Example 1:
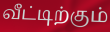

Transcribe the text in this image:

வீட்டிற்கும்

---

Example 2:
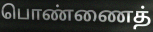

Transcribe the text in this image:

பொண்ணைத்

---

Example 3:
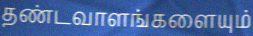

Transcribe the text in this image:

தண்டவாளங்களையும்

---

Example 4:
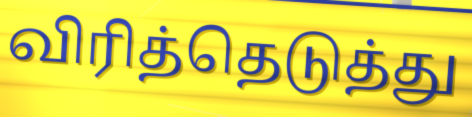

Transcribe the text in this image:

விரித்தெடுத்து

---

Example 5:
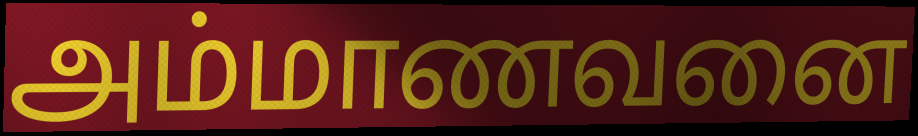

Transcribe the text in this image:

அம்மாணவனை